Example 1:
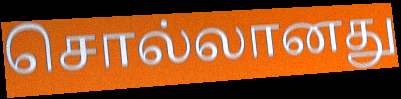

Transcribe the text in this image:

சொல்லானது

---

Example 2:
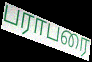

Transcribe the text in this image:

பராபரை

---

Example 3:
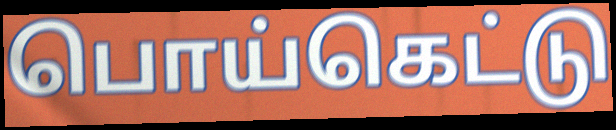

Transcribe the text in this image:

பொய்கெட்டு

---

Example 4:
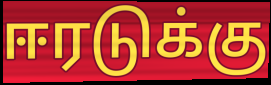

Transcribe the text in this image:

ஈரடுக்கு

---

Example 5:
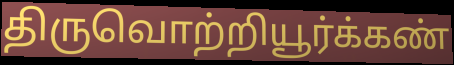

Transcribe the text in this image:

திருவொற்றியூர்க்கண்